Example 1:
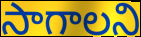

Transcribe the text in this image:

సాగాలని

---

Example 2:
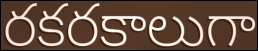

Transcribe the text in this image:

రకరకాలుగా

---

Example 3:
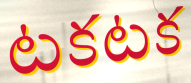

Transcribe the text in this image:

టకటక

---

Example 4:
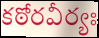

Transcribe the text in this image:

కఠోరవీర్యః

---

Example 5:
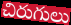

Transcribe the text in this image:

చిరుగులు